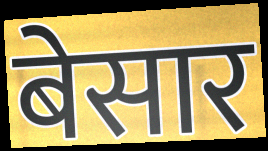
बेसार